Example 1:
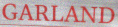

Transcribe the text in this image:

GARLAND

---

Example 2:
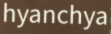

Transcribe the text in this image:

hyanchya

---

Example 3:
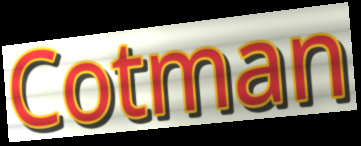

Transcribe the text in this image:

Cotman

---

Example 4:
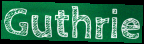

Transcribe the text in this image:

Guthrie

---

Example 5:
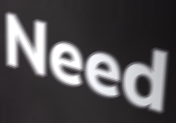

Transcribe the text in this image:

Need